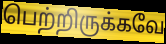
பெற்றிருக்கவே